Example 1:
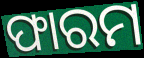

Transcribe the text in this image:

ଫାରମ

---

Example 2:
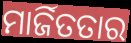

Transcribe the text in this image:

ମାର୍ଜିତତାର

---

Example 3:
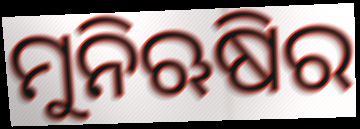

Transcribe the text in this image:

ମୁନିଋଷିର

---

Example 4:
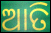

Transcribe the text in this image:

ଆତି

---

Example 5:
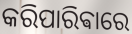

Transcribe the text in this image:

କରିପାରିଵାରେ